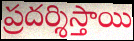
ప్రదర్శిస్తాయి